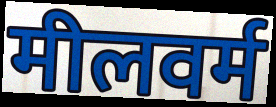
मीलवर्म